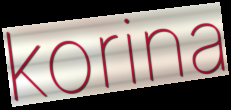
korina